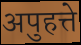
अपुहत्ते